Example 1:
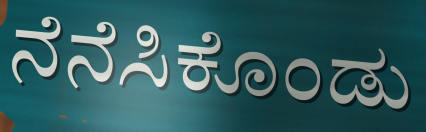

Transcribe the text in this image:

ನೆನೆಸಿಕೊಂಡು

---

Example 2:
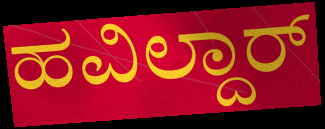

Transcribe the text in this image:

ಹವಿಲ್ದಾರ್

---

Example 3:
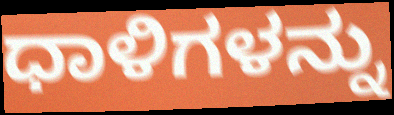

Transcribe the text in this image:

ಧಾಳಿಗಳನ್ನು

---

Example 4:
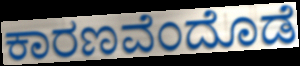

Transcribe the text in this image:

ಕಾರಣವೆಂದೊಡೆ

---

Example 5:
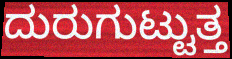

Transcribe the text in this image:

ದುರುಗುಟ್ಟುತ್ತ